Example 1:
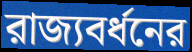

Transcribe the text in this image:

রাজ্যবর্ধনের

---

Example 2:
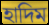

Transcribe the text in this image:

হাদিম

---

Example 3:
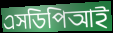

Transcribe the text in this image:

এসডিপিআই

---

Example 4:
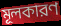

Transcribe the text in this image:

মূলকারণ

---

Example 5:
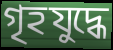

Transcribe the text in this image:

গৃহযুদ্ধে